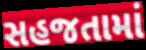
સહજતામાં